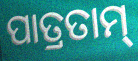
ପାତ୍ରତାମ୍